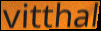
vitthal